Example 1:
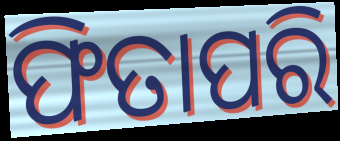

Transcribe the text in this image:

ଫିତାପରି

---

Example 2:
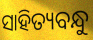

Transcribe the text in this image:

ସାହିତ୍ୟବନ୍ଧୁ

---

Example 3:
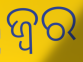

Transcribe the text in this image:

ଜ୍ଵର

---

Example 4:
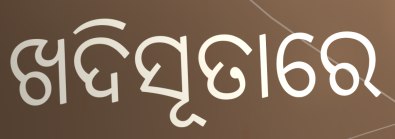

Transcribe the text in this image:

ଖଦିସୂତାରେ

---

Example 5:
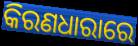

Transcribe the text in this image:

କିରଣଧାରାରେ